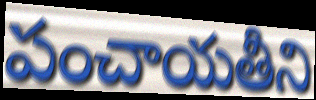
పంచాయతీని